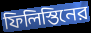
ফিলিস্তিনের